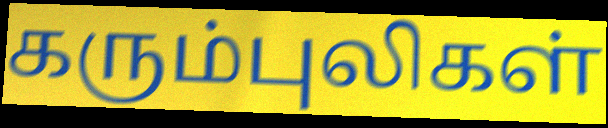
கரும்புலிகள்